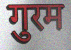
गुरम